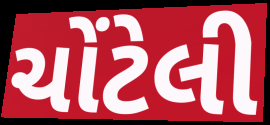
ચોંટેલી